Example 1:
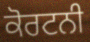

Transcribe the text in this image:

ਕੋਰਟਨੀ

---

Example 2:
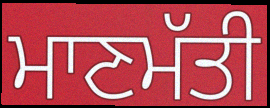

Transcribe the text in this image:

ਮਾਣਮੱਤੀ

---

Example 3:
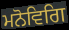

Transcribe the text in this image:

ਮਨੋਵਿਗਿ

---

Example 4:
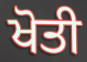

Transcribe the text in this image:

ਖੋਤੀ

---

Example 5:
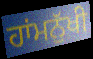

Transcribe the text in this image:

ਹਾਂਮਨੁੱਖੀ